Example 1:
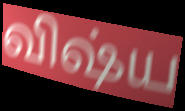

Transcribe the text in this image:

விஷ்ய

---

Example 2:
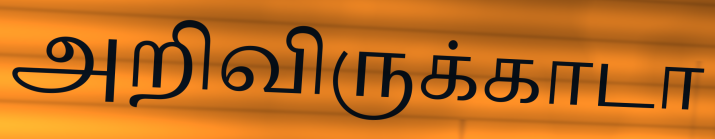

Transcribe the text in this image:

அறிவிருக்காடா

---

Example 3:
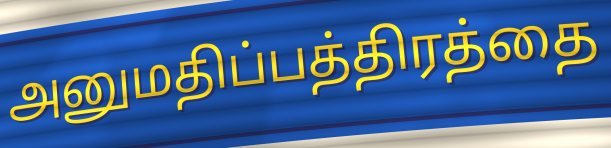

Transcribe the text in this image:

அனுமதிப்பத்திரத்தை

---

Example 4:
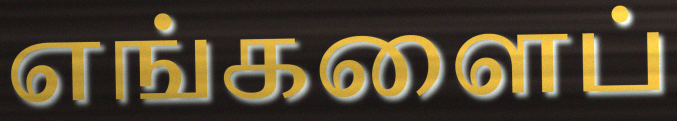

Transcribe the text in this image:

எங்களைப்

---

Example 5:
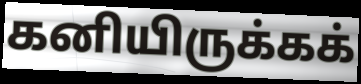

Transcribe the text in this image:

கனியிருக்கக்